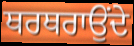
ਥਰਥਰਾਉਂਦੇ